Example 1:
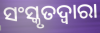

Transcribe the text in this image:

ସଂସ୍କୃତଦ୍ୱାରା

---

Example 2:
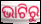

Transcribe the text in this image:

ଭାଟିରୁ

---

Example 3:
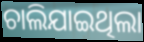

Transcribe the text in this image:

ଚାଲିଯାଇଥିଲା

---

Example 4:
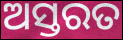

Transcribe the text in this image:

ଅସ୍ତରତ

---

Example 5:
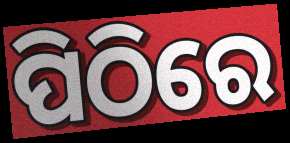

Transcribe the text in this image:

ପିଠିରେ